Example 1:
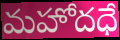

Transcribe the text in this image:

మహోదధే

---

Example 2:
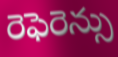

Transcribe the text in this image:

రెఫెరెన్సు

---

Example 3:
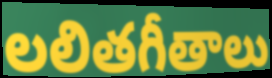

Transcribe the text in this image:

లలితగీతాలు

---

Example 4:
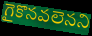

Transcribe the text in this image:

గైకొనవలెనని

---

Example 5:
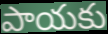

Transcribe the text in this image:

పాయకు